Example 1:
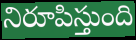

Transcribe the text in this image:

నిరూపిస్తుంది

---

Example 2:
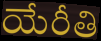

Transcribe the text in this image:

యేరీతి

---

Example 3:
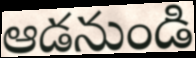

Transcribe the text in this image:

ఆడనుండి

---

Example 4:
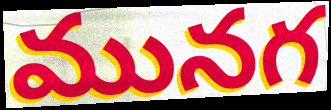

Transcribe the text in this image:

మునగ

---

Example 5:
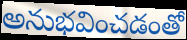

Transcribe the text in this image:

అనుభవించడంతో